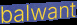
balwant